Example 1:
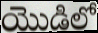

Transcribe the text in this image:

యొడిలో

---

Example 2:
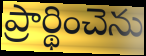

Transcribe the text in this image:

ప్రార్థించెను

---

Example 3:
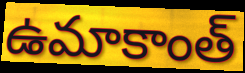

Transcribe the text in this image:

ఉమాకాంత్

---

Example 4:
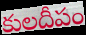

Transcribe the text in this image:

కులదీపం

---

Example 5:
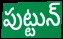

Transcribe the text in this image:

పుట్టున్